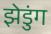
झेडुंग